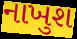
નાખુશ